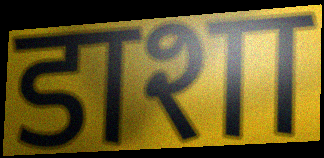
डाशा